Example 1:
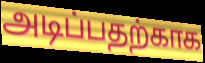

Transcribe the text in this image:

அடிப்பதற்காக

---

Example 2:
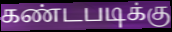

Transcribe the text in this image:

கண்டபடிக்கு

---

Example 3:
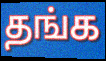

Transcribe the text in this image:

தங்க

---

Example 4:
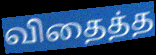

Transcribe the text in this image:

விதைத்த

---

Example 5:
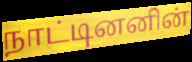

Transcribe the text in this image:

நாட்டினனின்